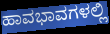
ಹಾವಭಾವಗಳಲ್ಲಿ